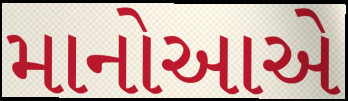
માનોઆએ